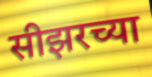
सीझरच्या